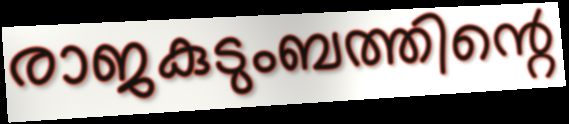
രാജകുടുംബത്തിന്റെ